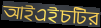
আইএইচটির